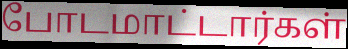
போடமாட்டார்கள்